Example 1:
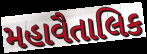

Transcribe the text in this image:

મહાવૈતાલિક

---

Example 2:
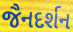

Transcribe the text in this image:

જૈનદર્શન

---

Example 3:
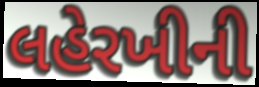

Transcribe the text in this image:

લહેરખીની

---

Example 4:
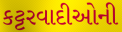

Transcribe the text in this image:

કટ્ટરવાદીઓની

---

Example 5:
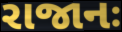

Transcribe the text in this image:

રાજાનઃ